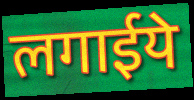
लगाईये